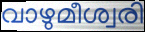
വാഴുമീശ്വരി